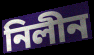
নিলীন